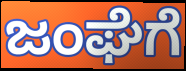
ಜಂಘೆಗೆ